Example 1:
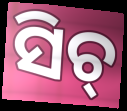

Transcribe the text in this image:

ସିଚ୍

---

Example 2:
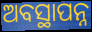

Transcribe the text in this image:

ଅବସ୍ଥାପନ୍ନ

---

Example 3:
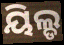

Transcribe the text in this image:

ୟିଲ୍ଡ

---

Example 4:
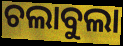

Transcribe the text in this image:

ଚଲାବୁଲା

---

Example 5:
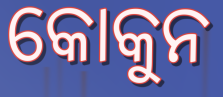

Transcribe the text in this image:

କୋକୁନ